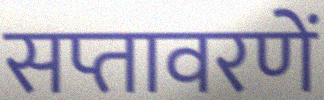
सप्तावरणें